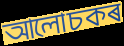
আলোচকৰ